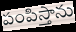
పంపిస్తాను